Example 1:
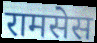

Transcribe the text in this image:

रामसेस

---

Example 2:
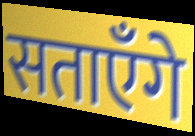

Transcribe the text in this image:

सताएँगे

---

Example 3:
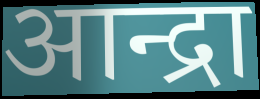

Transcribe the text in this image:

आन्द्रा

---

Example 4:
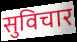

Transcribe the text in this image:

सुविचार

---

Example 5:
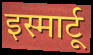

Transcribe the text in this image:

इस्मार्टू